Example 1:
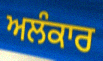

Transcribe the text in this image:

ਅਲੰਕਾਰ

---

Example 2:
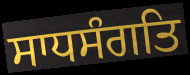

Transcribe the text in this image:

ਸਾਧਸੰਗਤਿ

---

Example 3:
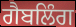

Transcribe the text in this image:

ਗੈਬਲਿੰਗ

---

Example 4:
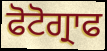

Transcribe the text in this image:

ਫੋਟੋਗ੍ਰਾਫ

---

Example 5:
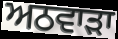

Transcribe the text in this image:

ਅਠਵਾੜਾ